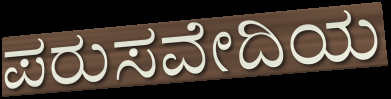
ಪರುಸವೇದಿಯ